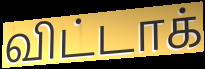
விட்டாக்